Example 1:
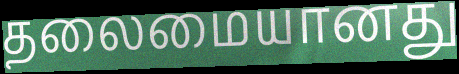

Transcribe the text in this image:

தலைமையானது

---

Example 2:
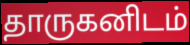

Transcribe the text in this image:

தாருகனிடம்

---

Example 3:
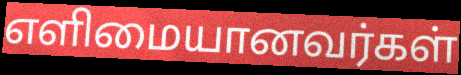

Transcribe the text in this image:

எளிமையானவர்கள்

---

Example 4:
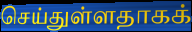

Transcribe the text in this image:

செய்துள்ளதாகக்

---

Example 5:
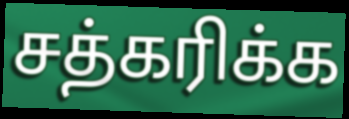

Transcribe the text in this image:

சத்கரிக்க